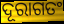
ଦୂରାଗତଂ